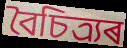
বৈচিত্ৰ্যৰ